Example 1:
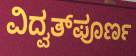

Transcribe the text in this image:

ವಿದ್ವತ್‌ಪೂರ್ಣ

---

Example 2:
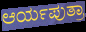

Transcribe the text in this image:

ಆರ್ಯಪುತ್ರಾ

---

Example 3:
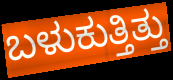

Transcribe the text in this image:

ಬಳುಕುತ್ತಿತ್ತು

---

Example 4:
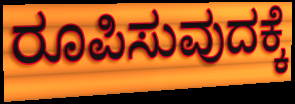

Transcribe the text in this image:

ರೂಪಿಸುವುದಕ್ಕೆ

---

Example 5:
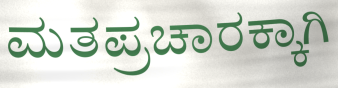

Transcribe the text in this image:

ಮತಪ್ರಚಾರಕ್ಕಾಗಿ